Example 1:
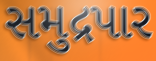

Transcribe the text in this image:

સમુદ્રપાર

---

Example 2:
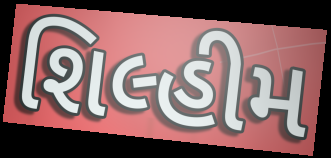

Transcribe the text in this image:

શિલ્હીમ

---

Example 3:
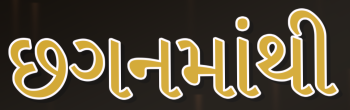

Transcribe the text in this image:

છગનમાંથી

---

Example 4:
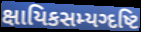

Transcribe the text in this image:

ક્ષાયિકસમ્યગ્દષ્ટિ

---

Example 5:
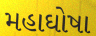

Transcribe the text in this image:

મહાઘોષા